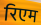
रिएम